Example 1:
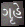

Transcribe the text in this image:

ગૃહે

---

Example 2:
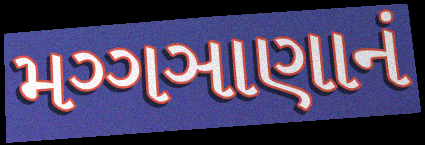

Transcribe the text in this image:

મગ્ગઞાણાનં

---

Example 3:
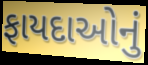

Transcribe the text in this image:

ફાયદાઓનું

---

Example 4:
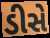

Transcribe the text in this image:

ડીસે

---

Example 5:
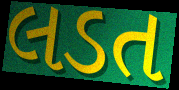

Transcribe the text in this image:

લડત